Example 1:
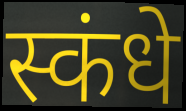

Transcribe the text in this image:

स्कंधे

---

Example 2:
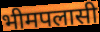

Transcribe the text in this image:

भीमपलासी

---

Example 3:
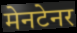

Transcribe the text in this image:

मेनटेनर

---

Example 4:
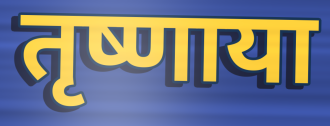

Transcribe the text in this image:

तृष्णाया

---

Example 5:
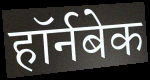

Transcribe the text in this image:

हॉर्नबेक